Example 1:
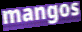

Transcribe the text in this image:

mangos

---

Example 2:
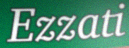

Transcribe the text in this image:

Ezzati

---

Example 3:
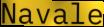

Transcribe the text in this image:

Navale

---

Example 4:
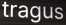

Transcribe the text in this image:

tragus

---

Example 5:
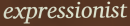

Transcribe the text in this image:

expressionist